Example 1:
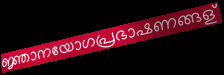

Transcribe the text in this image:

ജ്ഞാനയോഗപ്രഭാഷണങ്ങള്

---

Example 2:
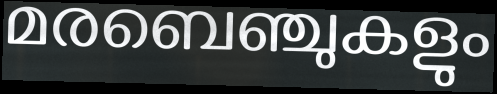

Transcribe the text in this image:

മരബെഞ്ചുകളും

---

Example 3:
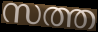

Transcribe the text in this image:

സത്ത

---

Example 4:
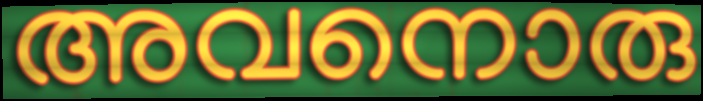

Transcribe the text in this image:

അവനൊരു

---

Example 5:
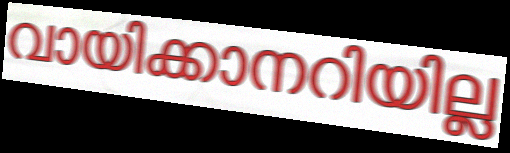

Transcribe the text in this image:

വായിക്കാനറിയില്ല